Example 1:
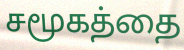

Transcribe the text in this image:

சமூகத்தை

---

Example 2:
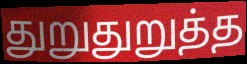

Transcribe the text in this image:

துறுதுறுத்த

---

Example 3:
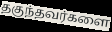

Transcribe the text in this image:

தகுந்தவர்களை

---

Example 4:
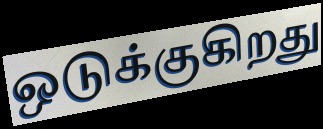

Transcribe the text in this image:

ஒடுக்குகிறது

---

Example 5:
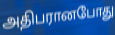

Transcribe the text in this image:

அதிபரானபோது